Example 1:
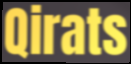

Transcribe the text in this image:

Qirats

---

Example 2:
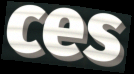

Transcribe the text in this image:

ces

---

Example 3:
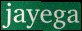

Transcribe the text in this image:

jayega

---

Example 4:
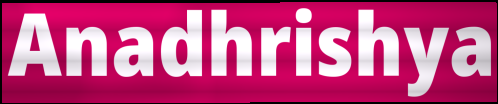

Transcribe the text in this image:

Anadhrishya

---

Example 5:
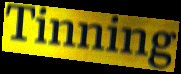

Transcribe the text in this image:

Tinning